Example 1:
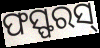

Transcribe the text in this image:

ଫସ୍ଫରସ୍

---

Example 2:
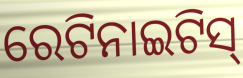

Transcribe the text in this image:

ରେଟିନାଇଟିସ୍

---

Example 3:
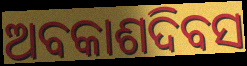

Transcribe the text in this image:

ଅବକାଶଦିବସ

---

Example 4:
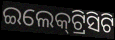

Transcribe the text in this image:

ଇଲେକ୍‌ଟ୍ରିସିଟି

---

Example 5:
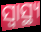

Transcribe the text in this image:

ସ୍ୱାସ୍ଥ୍ୟ